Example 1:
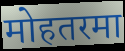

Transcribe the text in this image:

मोहतरमा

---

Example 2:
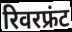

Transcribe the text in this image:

रिवरफ्रंट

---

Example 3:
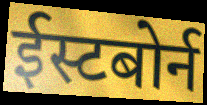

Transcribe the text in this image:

ईस्टबोर्न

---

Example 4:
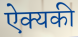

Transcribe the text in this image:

ऐक्यकी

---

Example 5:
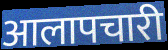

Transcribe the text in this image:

आलापचारी